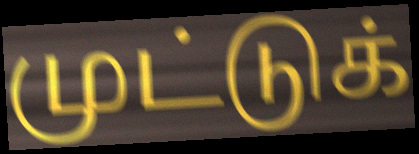
முட்டுக்